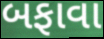
બફાવા